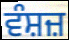
ਵੰਸ਼ਜ਼